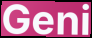
Geni